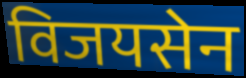
विजयसेन